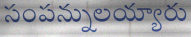
సంపన్నులయ్యారు